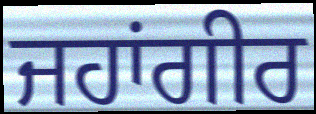
ਜਹਾਂਗੀਰ